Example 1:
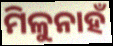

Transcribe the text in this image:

ମିଳୁନାହଁ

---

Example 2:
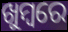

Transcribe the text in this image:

ଖୁମ୍ବରେ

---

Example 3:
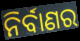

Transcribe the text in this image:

ନିର୍ବାଣର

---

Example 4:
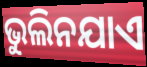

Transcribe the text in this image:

ଭୁଲିନଯାଏ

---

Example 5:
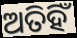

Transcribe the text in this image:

ଅତିହିଁ